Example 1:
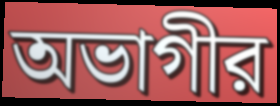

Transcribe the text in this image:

অভাগীর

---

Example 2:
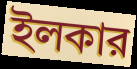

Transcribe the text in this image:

ইলকার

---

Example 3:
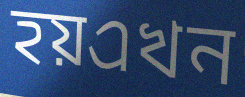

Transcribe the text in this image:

হয়এখন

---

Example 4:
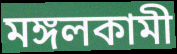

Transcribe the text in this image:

মঙ্গলকামী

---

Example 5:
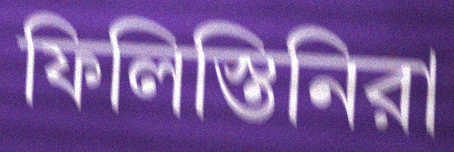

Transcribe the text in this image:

ফিলিস্তিনিরা